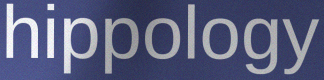
hippology